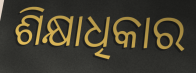
ଶିକ୍ଷାଧିକାର